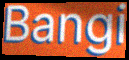
Bangi